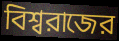
বিশ্বরাজের